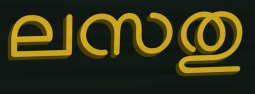
ലസതു